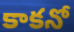
కాకనో